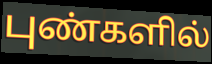
புண்களில்